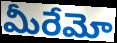
మీరేమో